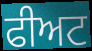
ਫੀਅਟ